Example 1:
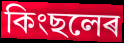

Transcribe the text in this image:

কিংছলেৰ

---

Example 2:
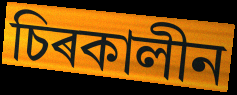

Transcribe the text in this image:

চিৰকালীন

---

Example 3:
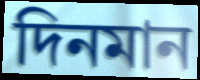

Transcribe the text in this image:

দিনমান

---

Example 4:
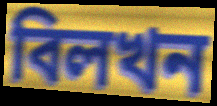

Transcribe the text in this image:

বিলখন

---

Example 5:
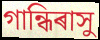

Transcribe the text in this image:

গান্ধিৰাসু